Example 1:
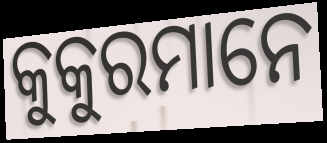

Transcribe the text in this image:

କୁକୁରମାନେ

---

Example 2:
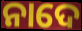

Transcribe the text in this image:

ନାଦେ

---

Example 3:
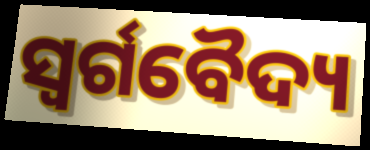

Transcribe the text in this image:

ସ୍ୱର୍ଗବୈଦ୍ୟ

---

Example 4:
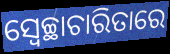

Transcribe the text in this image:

ସ୍ୱେଚ୍ଛାଚାରିତାରେ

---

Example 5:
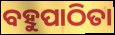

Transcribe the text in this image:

ବହୁପାଠିତା